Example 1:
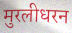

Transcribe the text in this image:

मुरलीधरन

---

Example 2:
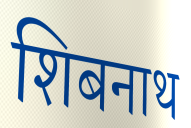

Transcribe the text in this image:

शिबनाथ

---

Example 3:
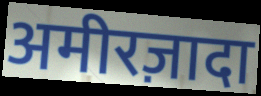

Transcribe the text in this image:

अमीरज़ादा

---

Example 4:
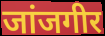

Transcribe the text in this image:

जांजगीर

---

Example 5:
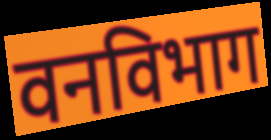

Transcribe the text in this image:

वनविभाग